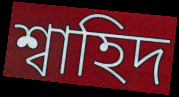
শ্বাহিদ